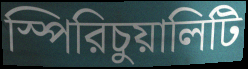
স্পিরিচুয়ালিটি